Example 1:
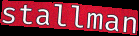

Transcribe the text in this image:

stallman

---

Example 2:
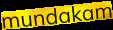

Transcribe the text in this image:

mundakam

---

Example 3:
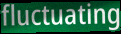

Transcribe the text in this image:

fluctuating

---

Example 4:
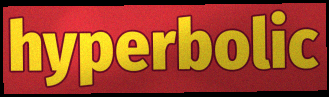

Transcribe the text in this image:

hyperbolic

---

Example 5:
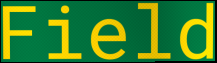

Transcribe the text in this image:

Field